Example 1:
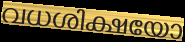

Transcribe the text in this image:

വധശിക്ഷയോ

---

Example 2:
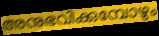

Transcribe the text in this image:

അനുഭവിക്കുമ്പോഴും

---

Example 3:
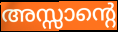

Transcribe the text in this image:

അസ്സാന്റെ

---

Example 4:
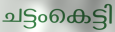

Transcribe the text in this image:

ചട്ടംകെട്ടി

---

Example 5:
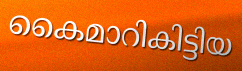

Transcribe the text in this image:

കൈമാറികിട്ടിയ